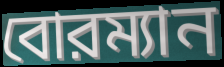
বোরম্যান